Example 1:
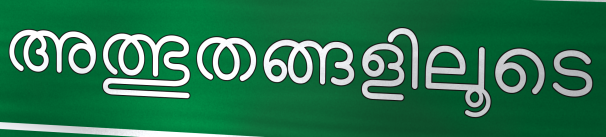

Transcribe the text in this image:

അത്ഭുതങ്ങളിലൂടെ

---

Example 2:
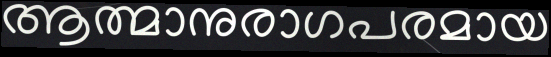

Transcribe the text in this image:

ആത്മാനുരാഗപരമായ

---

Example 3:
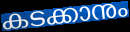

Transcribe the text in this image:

കടക്കാനും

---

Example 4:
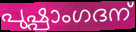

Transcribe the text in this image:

പുഷ്പാംഗദന്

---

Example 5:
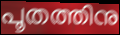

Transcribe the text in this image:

പൂതത്തിനു